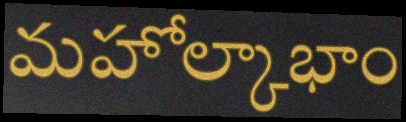
మహోల్కాభాం